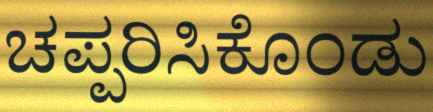
ಚಪ್ಪರಿಸಿಕೊಂಡು